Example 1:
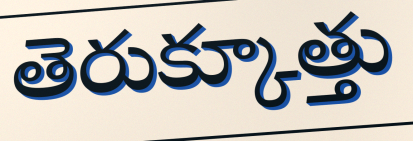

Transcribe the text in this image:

తెరుక్కూత్తు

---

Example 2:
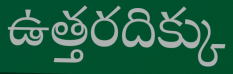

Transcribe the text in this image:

ఉత్తరదిక్కు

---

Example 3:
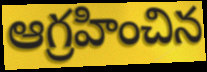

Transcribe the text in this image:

ఆగ్రహించిన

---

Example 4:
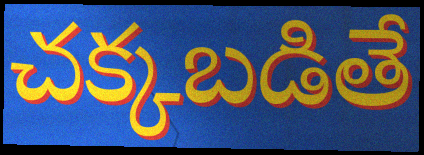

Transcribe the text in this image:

చక్కబడితే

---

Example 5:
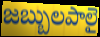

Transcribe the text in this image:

జబ్బులపాలై